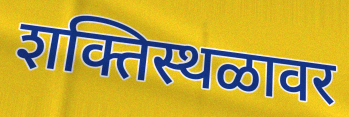
शक्तिस्थळावर